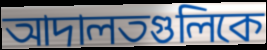
আদালতগুলিকে